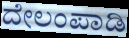
ದೇಲಂಪಾಡಿ